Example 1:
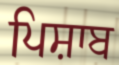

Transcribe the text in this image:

ਪਿਸ਼ਾਬ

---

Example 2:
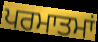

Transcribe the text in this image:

ਪਰਮਾਤਮਾਂ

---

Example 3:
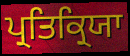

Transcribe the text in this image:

ਪ੍ਰਤਿਕ੍ਰਿਯਾ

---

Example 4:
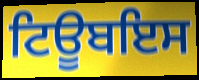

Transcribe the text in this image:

ਟਿਊਬਇਸ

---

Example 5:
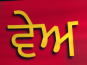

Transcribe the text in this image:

ਵੇਅ